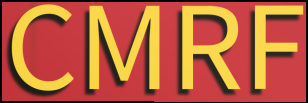
CMRF